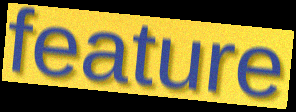
feature